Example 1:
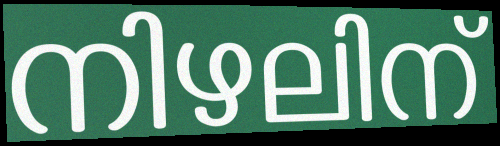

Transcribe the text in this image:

നിഴലിന്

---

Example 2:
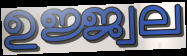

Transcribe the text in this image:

ഉജ്ജ്വല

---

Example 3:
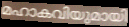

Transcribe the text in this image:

മഹാകവിയുമായി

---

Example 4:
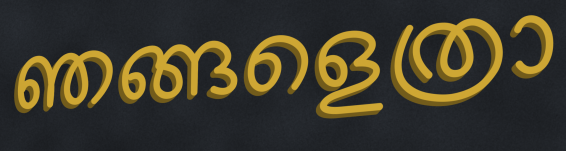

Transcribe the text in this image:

ഞങ്ങളെത്രാ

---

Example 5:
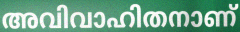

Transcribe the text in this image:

അവിവാഹിതനാണ്